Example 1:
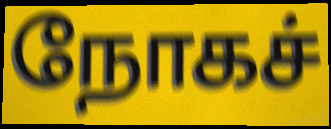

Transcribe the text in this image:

நோகச்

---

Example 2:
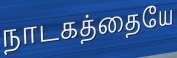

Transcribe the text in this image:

நாடகத்தையே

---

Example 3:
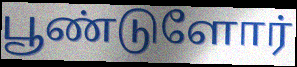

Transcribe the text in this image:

பூண்டுளோர்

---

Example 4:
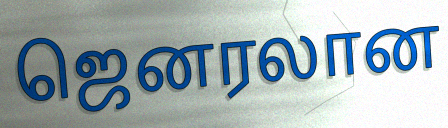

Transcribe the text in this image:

ஜெனரலான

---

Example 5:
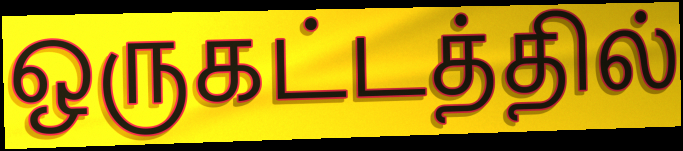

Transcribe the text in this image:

ஒருகட்டத்தில்